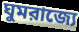
ঘুমরাজ্যে